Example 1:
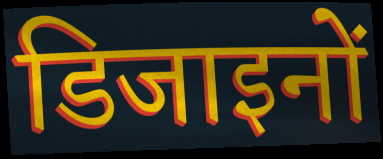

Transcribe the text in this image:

डिजाइनों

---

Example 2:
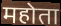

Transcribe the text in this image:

महोता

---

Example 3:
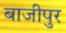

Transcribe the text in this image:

बाजीपुर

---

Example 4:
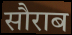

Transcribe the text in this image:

सौराब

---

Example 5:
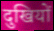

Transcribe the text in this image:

दुखियों